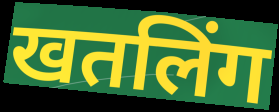
खतलिंग